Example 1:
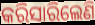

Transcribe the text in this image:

କରିସାରିଲେଣି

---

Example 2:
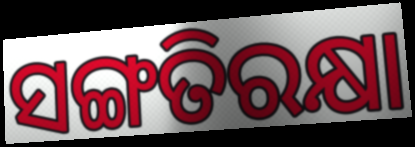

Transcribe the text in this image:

ସଙ୍ଗତିରକ୍ଷା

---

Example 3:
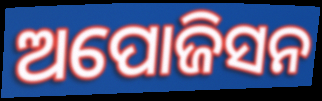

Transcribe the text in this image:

ଅପୋଜିସନ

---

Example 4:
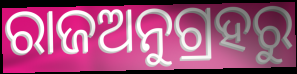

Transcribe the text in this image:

ରାଜଅନୁଗ୍ରହରୁ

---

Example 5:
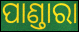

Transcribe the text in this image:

ପାଣ୍ଡାରା